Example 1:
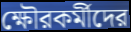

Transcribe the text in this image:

ক্ষৌরকর্মীদের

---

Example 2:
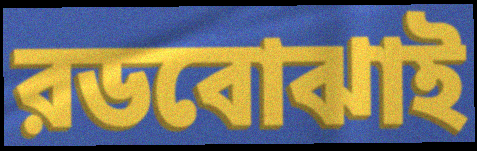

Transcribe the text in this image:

রডবোঝাই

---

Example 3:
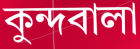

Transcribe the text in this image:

কুন্দবালা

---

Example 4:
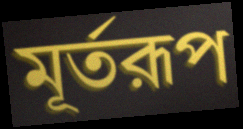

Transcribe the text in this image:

মূর্তরূপ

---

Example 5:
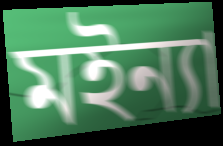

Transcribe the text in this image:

মইন্যা